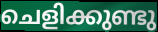
ചെളിക്കുണ്ടു